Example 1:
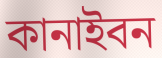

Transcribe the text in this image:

কানাইবন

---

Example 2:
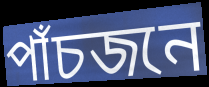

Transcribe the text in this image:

পাঁচজনে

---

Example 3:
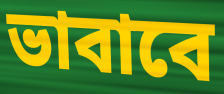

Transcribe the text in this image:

ভাবাবে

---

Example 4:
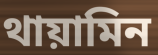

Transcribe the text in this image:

থায়ামিন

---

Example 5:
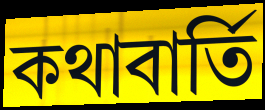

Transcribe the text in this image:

কথাবার্তি